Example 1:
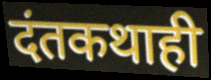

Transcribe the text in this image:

दंतकथाही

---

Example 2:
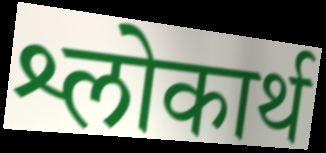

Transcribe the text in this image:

श्लोकार्थ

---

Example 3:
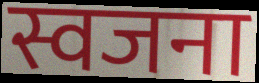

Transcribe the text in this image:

स्वजना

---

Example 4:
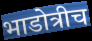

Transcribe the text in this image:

भाडोत्रीच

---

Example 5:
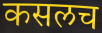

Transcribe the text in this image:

कसलच